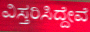
ವಿಸ್ತರಿಸಿದ್ದೇವೆ